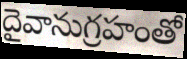
దైవానుగ్రహంతో